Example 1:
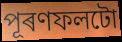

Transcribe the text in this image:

পূৰণফলটো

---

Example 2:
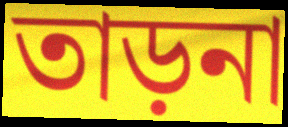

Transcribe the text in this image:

তাড়না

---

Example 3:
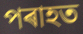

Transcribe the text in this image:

পৰাহত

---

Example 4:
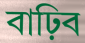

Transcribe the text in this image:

বাঢ়িব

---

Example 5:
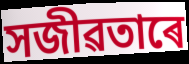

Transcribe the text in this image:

সজীৱতাৰে